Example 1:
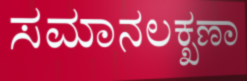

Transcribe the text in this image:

ಸಮಾನಲಕ್ಖಣಾ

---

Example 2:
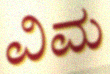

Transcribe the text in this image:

ವಿಮ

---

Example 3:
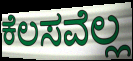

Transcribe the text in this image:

ಕೆಲಸವೆಲ್ಲ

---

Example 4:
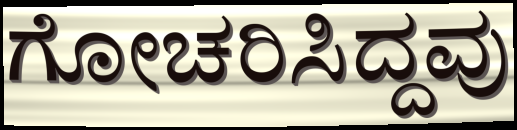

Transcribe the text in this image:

ಗೋಚರಿಸಿದ್ದವು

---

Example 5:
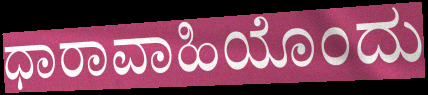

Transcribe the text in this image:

ಧಾರಾವಾಹಿಯೊಂದು